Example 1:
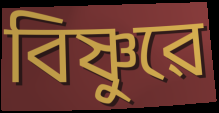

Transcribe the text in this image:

বিষ্ণুৱে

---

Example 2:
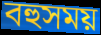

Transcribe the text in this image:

বহুসময়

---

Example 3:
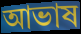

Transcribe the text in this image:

আভাষ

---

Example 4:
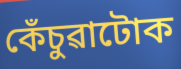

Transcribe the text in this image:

কেঁচুৱাটোক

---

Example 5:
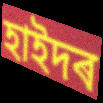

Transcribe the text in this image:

হাইদৰ